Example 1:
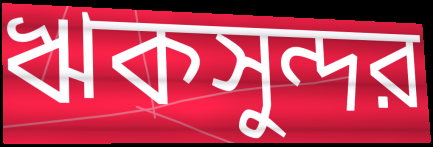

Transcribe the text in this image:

ঋকসুন্দর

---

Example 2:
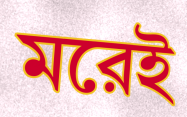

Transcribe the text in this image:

মরেই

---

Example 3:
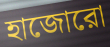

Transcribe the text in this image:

হাজোরো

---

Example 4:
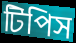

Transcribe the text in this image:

টিপিস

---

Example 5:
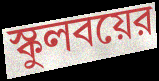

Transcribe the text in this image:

স্কুলবয়ের